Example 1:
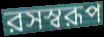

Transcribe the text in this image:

রসস্বরূপ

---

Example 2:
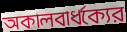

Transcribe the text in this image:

অকালবার্ধক্যের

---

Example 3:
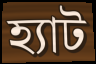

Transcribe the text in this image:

হ্যাট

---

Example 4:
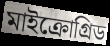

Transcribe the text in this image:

মাইক্রোগ্রিড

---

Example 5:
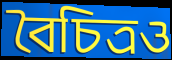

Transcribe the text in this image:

বৈচিত্রও